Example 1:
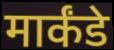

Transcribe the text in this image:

मार्कंडे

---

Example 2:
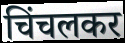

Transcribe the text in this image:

चिंचलकर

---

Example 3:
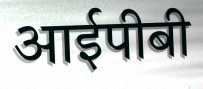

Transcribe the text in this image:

आईपीबी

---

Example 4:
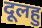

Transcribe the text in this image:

दूलहु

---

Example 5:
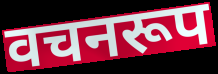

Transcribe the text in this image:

वचनरूप